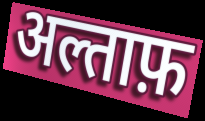
अल्ताफ़